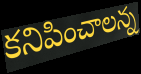
కనిపించాలన్న